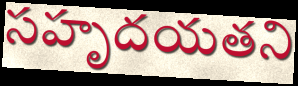
సహృదయతని